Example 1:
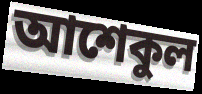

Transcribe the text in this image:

আশেকুল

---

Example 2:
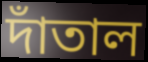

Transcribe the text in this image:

দাঁতাল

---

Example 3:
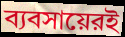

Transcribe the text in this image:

ব্যবসায়েরই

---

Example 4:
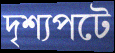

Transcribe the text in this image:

দৃশ্যপটে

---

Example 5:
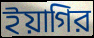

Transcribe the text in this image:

ইয়াগির